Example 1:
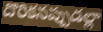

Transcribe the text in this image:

దొరికనప్పుడల్లా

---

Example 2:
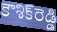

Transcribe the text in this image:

కౌశిక్‌రెడ్డి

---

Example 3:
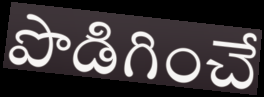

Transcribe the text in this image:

పొడిగించే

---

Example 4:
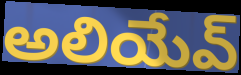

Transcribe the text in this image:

అలియేవ్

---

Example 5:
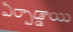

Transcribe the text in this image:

ఏర్పాడ్డాయి